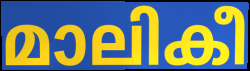
മാലികീ